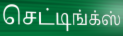
செட்டிங்க்ஸ்